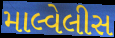
માલ્વેલીસ